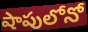
షాపులోనో